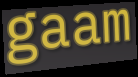
gaam